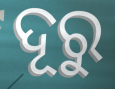
ଦୂରୁ